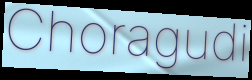
Choragudi